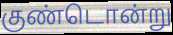
குண்டொன்று